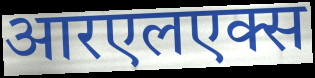
आरएलएक्स